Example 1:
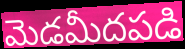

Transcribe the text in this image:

మెడమీదపడి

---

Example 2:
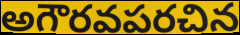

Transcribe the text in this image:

అగౌరవపరచిన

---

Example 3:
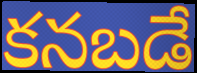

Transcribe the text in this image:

కనబడే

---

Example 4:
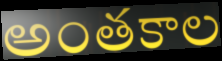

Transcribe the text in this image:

అంతకాల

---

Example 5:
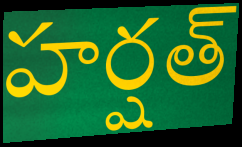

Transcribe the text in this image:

హర్షత్